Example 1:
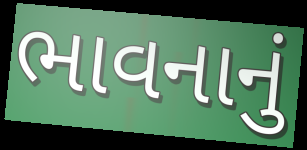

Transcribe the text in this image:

ભાવનાનું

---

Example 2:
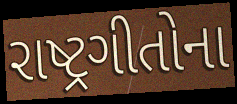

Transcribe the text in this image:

રાષ્ટ્રગીતોના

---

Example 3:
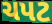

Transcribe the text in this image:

ચપટ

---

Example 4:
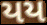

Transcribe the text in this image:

યય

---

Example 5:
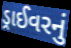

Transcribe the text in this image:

ડ્રાઈવરનું